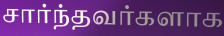
சார்ந்தவர்களாக